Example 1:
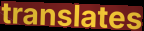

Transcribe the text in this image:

translates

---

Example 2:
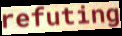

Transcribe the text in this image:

refuting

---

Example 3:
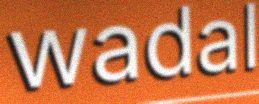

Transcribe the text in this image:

wadal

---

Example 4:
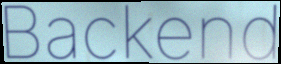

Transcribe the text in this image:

Backend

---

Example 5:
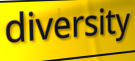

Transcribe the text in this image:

diversity